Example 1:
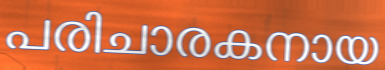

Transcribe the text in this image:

പരിചാരകനായ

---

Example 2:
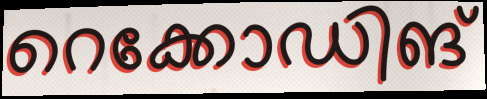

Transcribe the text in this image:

റെക്കോഡിങ്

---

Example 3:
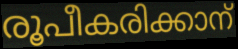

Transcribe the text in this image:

രൂപീകരിക്കാന്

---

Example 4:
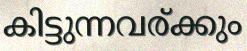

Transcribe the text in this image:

കിട്ടുന്നവര്ക്കും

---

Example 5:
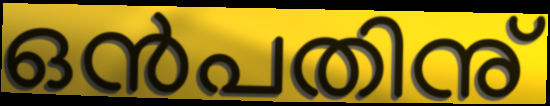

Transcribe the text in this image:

ഒൻപതിനു്